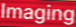
Imaging